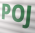
POJ